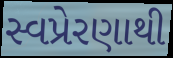
સ્વપ્રેરણાથી